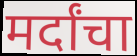
मर्दांचा